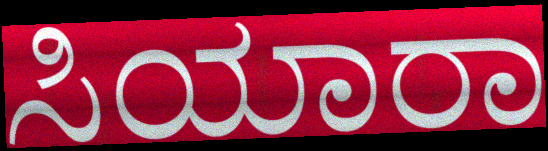
ಸಿಯಾರಾ